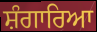
ਸ਼ੰਗਾਰਿਆ